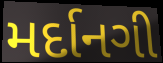
મર્દાનગી